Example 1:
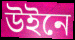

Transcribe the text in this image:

উইনে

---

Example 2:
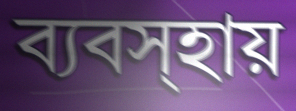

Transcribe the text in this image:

ব্যবস্হায়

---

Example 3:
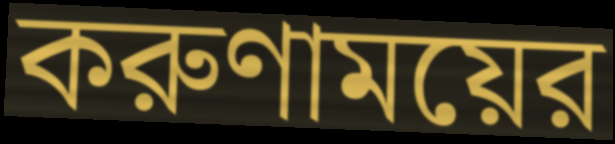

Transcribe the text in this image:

করুণাময়ের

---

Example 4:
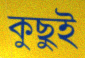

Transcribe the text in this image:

কুছুই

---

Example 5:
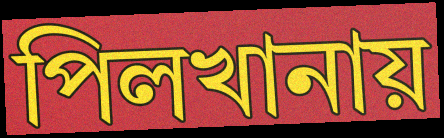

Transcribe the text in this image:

পিলখানায়